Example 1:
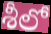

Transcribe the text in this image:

శీలో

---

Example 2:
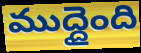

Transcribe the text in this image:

ముద్దైంది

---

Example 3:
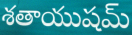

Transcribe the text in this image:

శతాయుషమ్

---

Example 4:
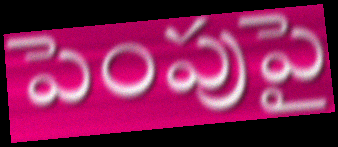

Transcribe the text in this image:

పెంపుపై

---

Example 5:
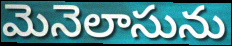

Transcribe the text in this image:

మెనెలాసును